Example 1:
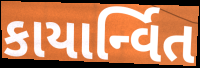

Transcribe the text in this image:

કાયાર્ન્વિત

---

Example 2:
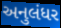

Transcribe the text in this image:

અનુલંધર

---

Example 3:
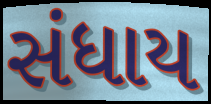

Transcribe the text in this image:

સંધાય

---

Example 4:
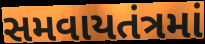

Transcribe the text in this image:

સમવાયતંત્રમાં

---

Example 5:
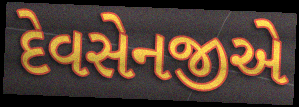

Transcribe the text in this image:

દેવસેનજીએ